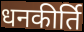
धनकीर्ति